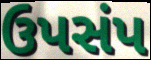
ઉપસંપ